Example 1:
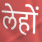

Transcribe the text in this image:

लेहों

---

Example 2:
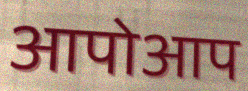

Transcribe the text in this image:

आपोआप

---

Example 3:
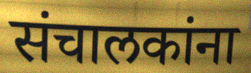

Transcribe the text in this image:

संचालकांना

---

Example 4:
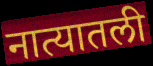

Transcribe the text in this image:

नात्यातली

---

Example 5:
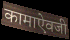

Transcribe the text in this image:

कामाऐवजी